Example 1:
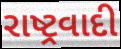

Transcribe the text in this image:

રાષ્ટ્રવાદી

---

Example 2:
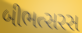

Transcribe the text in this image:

બીભત્સરસ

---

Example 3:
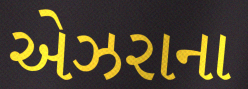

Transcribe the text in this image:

એઝરાના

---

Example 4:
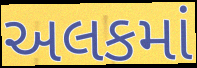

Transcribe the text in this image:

અલકમાં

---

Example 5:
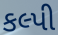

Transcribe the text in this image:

કલ્પી